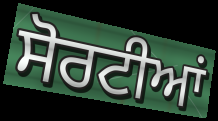
ਸੋਰਟੀਆਂ